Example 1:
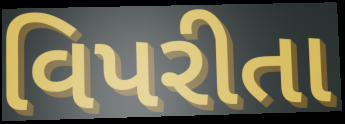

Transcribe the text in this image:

વિપરીતા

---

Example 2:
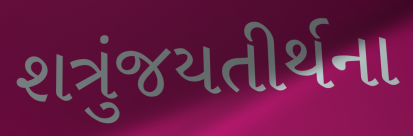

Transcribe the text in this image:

શત્રુંજયતીર્થના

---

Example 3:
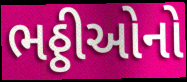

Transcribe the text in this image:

ભઠ્ઠીઓનો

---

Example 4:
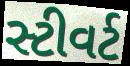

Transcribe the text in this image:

સ્ટીવર્ટ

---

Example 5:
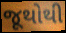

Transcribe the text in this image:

જૂથોથી